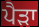
ਪੈੜਾ